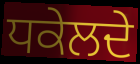
ਧਕੇਲਦੇ